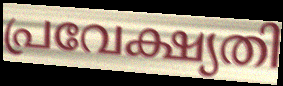
പ്രവേക്ഷ്യതി